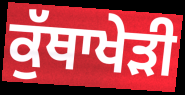
ਕੁੱਥਾਖੇੜੀ